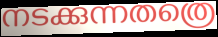
നടക്കുന്നതത്രെ